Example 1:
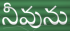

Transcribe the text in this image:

నీవును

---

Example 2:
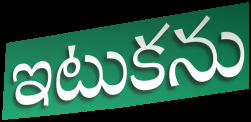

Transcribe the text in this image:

ఇటుకను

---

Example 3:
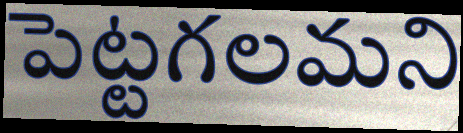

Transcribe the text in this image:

పెట్టగలమని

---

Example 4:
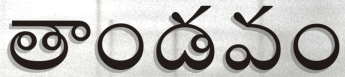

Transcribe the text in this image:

తాండవం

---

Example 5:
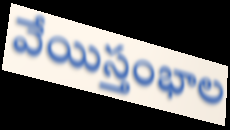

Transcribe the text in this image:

వేయిస్తంభాల